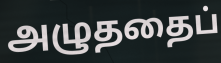
அழுததைப்